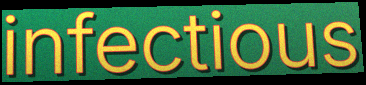
infectious